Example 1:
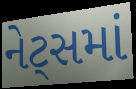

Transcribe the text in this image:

નેટ્સમાં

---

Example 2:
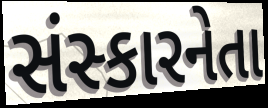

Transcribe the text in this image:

સંસ્કારનેતા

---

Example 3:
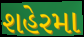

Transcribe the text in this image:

શહેરમા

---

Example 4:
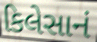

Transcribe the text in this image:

કિલેસાનં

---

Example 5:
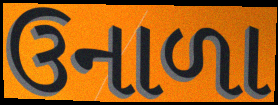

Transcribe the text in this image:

ઉનાળા